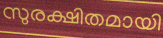
സുരക്ഷിതമായി